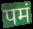
पमं